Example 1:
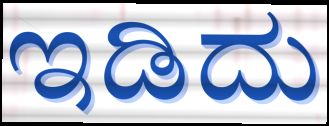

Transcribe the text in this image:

ಇಡಿದು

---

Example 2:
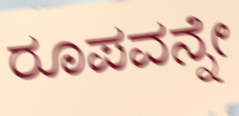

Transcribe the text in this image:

ರೂಪವನ್ನೇ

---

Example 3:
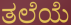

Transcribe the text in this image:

ತಲೆಯೆ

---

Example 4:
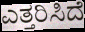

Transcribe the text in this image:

ಎತ್ತರಿಸಿದೆ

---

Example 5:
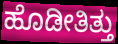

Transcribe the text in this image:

ಹೊಡೀತಿತ್ತು